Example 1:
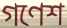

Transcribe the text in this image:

গণেশ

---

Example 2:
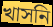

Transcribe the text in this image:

খাসনি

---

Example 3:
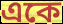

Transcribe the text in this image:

একে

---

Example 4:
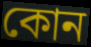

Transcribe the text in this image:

কোন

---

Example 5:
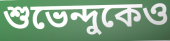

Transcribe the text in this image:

শুভেন্দুকেও